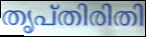
തൃപ്തിരിതി